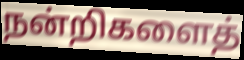
நன்றிகளைத்